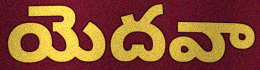
యెదవా